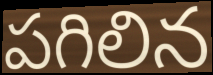
పగిలిన